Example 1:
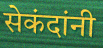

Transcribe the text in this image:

सेकंदांनी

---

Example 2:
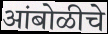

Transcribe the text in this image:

आंबोळीचे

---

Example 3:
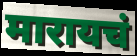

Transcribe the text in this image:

मारायचं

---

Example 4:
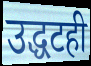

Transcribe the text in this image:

उद्धटही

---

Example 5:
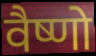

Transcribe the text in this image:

वैष्णो